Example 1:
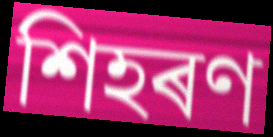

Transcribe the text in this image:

শিহৰণ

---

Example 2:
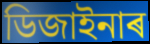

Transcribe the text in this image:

ডিজাইনাৰ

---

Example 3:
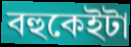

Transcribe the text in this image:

বহুকেইটা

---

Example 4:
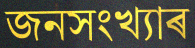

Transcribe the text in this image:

জনসংখ্যাৰ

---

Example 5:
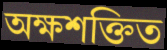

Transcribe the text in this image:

অক্ষশক্তিত